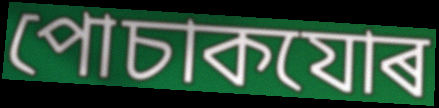
পোচাকযোৰ